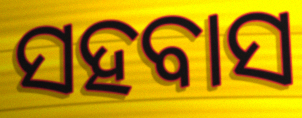
ସହବାସ